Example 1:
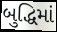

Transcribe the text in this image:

બુદ્ધિમાં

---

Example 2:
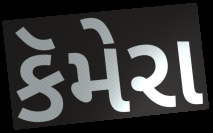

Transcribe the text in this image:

કૅમેરા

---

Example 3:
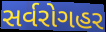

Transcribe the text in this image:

સર્વરોગહર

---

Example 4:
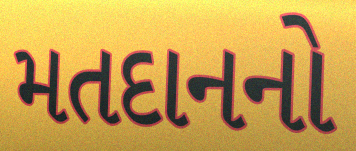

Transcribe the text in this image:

મતદાનનો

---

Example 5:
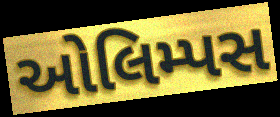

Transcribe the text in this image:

ઓલિમ્પસ